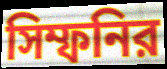
সিম্ফনির